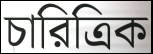
চারিত্রিক